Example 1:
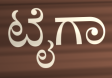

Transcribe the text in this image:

ಟೈಗಾ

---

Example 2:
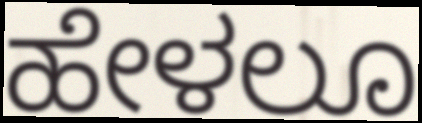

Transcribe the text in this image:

ಹೇಳಲೂ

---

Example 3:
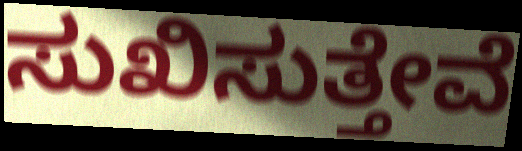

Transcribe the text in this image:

ಸುಖಿಸುತ್ತೇವೆ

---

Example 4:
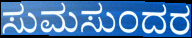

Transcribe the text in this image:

ಸುಮಸುಂದರ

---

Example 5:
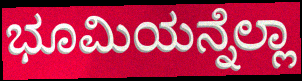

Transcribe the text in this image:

ಭೂಮಿಯನ್ನೆಲ್ಲಾ